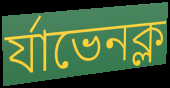
র্যাভেনক্ল